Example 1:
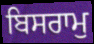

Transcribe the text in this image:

ਬਿਸਰਾਮੁ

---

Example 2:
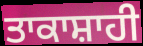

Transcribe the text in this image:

ਤਾਕਾਸ਼ਾਹੀ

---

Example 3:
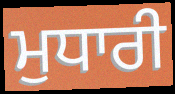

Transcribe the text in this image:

ਮੁਧਾਰੀ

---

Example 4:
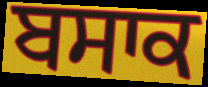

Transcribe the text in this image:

ਬਸਾਕ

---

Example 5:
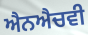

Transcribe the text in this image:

ਐਨਐਚਵੀ